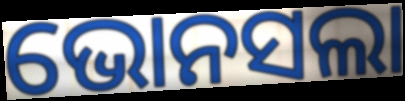
ଭୋନସଲା